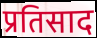
प्रतिसाद